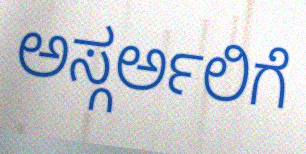
ಅಸ್ಗರ್ಅಲಿಗೆ